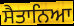
ਸੈਤਾਨਿਆ